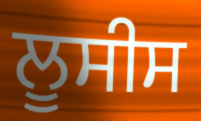
ਲੂਸੀਸ